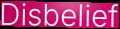
Disbelief